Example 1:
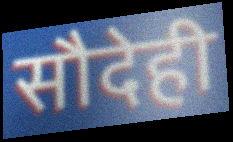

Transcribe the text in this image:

सौदेही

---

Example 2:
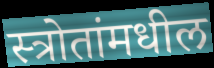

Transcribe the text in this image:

स्त्रोतांमधील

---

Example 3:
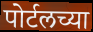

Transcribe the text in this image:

पोर्टलच्या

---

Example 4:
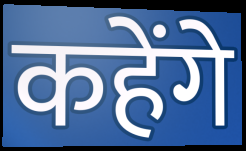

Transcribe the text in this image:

कहेंगे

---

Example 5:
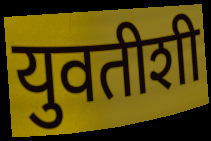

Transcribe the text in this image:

युवतीशी